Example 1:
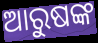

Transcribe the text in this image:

ଆରୁଷଙ୍କ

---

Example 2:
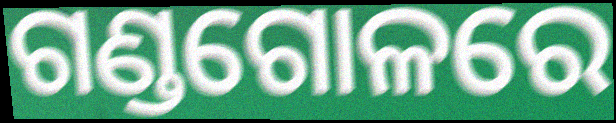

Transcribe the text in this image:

ଗଣ୍ଡଗୋଳରେ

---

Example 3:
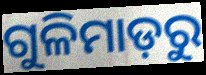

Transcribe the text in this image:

ଗୁଳିମାଡ଼ରୁ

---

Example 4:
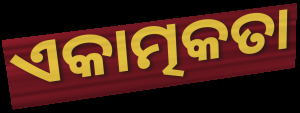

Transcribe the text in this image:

ଏକାତ୍ମକତା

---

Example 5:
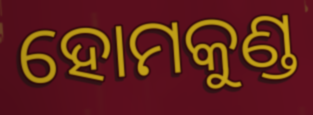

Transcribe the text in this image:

ହୋମକୁଣ୍ଡ